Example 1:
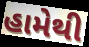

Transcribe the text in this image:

હામેથી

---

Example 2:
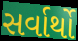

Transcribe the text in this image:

સર્વાર્થો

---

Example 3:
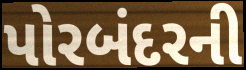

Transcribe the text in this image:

પોરબંદરની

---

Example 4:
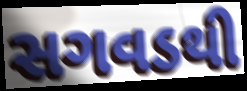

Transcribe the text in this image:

સગવડથી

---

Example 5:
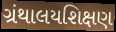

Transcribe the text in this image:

ગ્રંથાલયશિક્ષણ